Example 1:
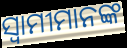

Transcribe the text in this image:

ସ୍ବାମୀମାନଙ୍କ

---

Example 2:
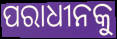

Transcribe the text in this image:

ପରାଧୀନକୁ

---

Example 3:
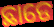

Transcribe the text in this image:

ଛାଡେ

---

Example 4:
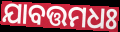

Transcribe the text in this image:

ଯାବତ୍ତମଧଃ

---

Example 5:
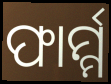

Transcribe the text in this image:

ଫାର୍ମ୍ମ